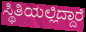
ಸ್ಥಿತಿಯಲ್ಲಿದ್ದಾರೆ